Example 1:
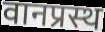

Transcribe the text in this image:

वानप्रस्थ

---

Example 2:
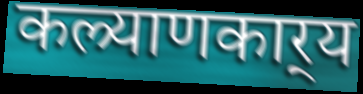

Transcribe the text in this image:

कल्याणकार्य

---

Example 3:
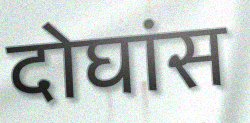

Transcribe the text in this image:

दोघांस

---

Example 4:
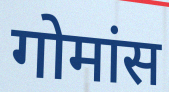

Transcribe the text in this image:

गोमांस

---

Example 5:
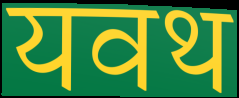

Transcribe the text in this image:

यवथ